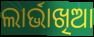
ଲାର୍ଭାଖିଆ